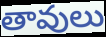
తావులు